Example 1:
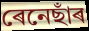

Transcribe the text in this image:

ৰেনেছাঁৰ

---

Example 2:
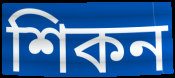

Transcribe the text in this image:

শিকন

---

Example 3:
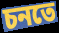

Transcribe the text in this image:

চনতে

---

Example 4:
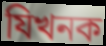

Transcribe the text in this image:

যিখনক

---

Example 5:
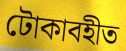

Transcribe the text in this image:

টোকাবহীত